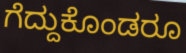
ಗೆದ್ದುಕೊಂಡರೂ